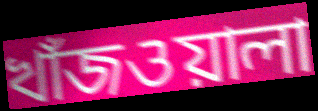
খাঁজওয়ালা